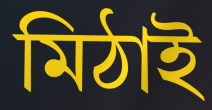
মিঠাই